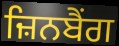
ਜ਼ਿਨਬੈਂਗ